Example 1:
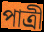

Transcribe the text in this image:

পাত্রী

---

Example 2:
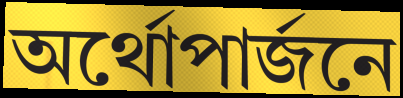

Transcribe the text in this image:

অর্থোপার্জনে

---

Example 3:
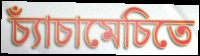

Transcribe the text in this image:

চ্যাঁচামেচিতে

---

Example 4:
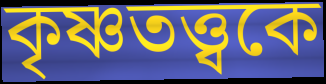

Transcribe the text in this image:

কৃষ্ণতত্ত্বকে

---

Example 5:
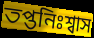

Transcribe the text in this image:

তপ্তনিঃশ্বাস